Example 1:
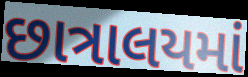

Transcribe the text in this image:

છાત્રાલયમાં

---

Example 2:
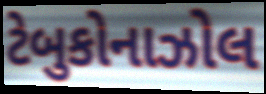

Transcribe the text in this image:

ટેબુકોનાઝોલ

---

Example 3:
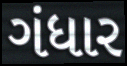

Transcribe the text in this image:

ગંધાર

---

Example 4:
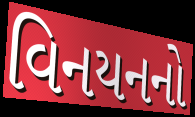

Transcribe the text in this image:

વિનયનનો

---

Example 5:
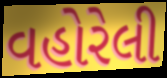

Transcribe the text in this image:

વહોરેલી